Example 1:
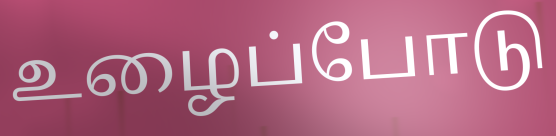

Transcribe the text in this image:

உழைப்போடு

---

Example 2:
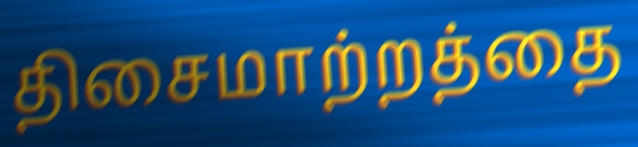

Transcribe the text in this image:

திசைமாற்றத்தை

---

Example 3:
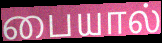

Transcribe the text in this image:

பையால்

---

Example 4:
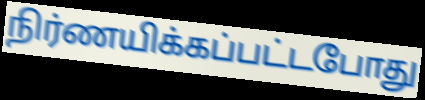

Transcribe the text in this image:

நிர்ணயிக்கப்பட்டபோது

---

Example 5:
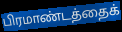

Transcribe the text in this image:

பிரமாண்டத்தைக்